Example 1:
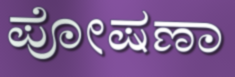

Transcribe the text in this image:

ಪೋಷಣಾ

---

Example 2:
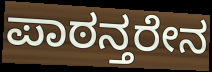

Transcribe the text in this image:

ಪಾಠನ್ತರೇನ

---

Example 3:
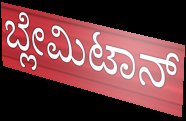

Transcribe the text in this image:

ಬ್ಲೇಮಿಟಾನ್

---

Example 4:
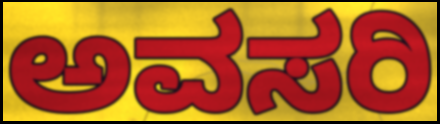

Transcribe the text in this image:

ಅವಸರಿ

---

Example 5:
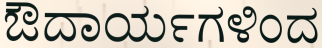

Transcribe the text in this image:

ಔದಾರ್ಯಗಳಿಂದ